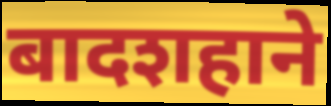
बादशहाने